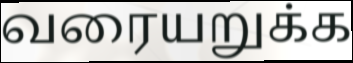
வரையறுக்க